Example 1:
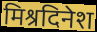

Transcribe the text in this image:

मिश्रदिनेश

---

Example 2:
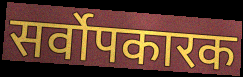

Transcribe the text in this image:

सर्वोपकारक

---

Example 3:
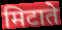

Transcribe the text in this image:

मिटाते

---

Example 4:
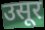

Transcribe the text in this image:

उसूर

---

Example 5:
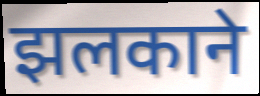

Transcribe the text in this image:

झलकाने